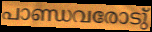
പാണ്ഡവരോടു്